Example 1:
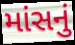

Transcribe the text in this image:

માંસનું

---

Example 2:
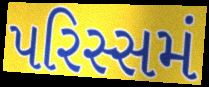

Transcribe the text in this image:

પરિસ્સમં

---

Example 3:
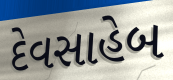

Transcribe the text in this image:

દેવસાહેબ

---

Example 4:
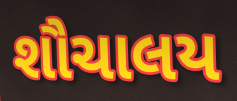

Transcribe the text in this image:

શૌચાલય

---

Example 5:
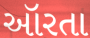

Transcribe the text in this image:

ઑરતા